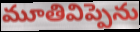
మూతివిప్పెను